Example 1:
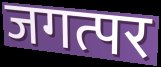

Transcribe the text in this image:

जगत्पर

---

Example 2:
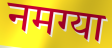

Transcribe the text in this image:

नमग्या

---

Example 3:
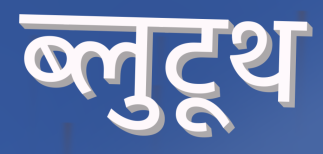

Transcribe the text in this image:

ब्लुटूथ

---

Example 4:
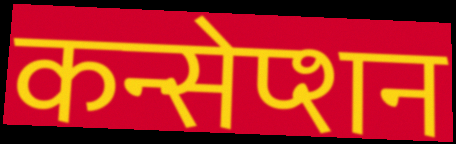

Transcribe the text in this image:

कन्सेप्शन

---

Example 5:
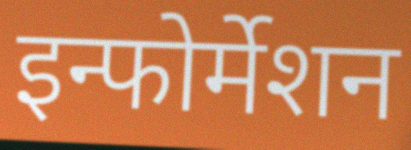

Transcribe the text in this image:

इन्फोर्मेशन